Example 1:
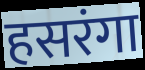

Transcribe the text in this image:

हसरंगा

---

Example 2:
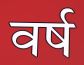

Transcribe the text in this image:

वर्ष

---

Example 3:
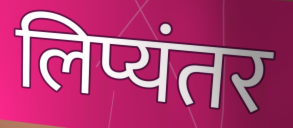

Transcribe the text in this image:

लिप्यंतर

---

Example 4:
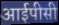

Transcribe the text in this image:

आईपीसी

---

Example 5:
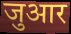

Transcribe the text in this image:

जुआर